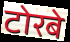
टोरबे